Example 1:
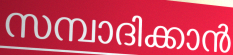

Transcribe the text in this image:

സമ്പാദിക്കാൻ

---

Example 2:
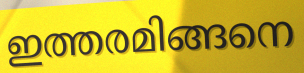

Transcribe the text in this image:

ഇത്തരമിങ്ങനെ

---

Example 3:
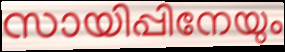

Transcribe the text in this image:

സായിപ്പിനേയും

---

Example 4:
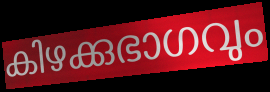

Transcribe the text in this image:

കിഴക്കുഭാഗവും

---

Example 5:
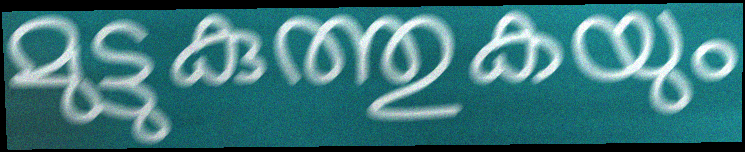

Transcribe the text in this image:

മുട്ടുകുത്തുകയും